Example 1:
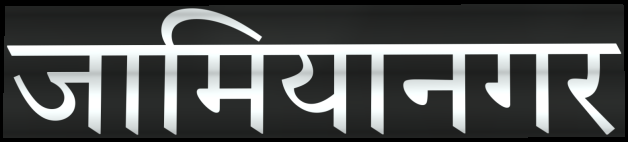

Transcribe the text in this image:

जामियानगर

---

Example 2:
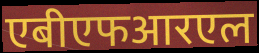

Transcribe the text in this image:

एबीएफआरएल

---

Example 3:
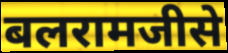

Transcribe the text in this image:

बलरामजीसे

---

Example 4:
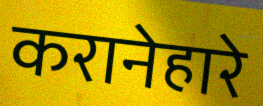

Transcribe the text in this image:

करानेहारे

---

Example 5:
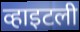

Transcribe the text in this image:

व्हाइटली